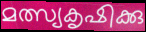
മത്സ്യകൃഷിക്കു